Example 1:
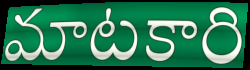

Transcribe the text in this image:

మాటకారి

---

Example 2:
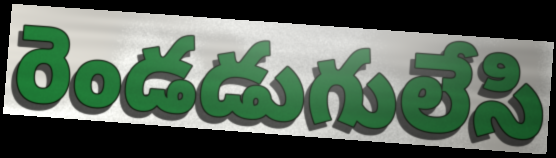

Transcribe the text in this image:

రెండడుగులేసి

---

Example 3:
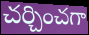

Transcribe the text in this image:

చర్చించగా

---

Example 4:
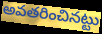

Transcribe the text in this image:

అవతరించినట్టు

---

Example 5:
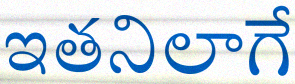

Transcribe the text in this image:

ఇతనిలాగే